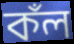
কঁল